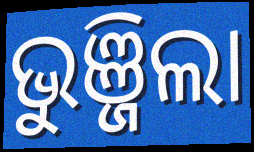
ଭୁଞ୍ଜିଲା